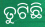
ତୁଟିଛି